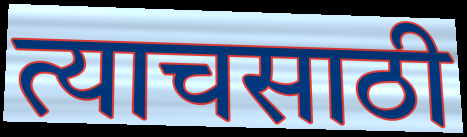
त्याचसाठी